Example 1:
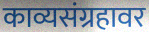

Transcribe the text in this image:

काव्यसंग्रहावर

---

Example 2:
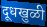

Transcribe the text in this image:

दूधखुळी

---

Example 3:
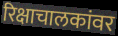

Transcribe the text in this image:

रिक्षाचालकांवर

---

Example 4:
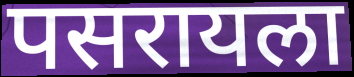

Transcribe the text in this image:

पसरायला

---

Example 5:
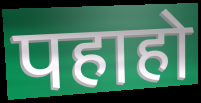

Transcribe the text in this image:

पहाहो